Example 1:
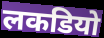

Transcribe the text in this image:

लकडियो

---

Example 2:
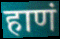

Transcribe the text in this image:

हाणं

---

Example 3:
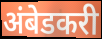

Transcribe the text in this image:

अंबेडकरी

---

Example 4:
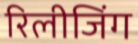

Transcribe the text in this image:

रिलीजिंग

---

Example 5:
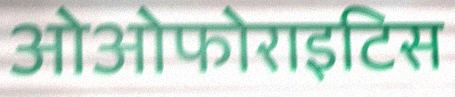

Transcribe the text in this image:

ओओफोराइटिस